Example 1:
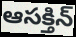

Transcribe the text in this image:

ఆసక్తిన్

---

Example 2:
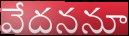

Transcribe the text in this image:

వేదననూ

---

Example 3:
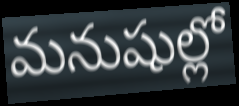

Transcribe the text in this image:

మనుషుల్లో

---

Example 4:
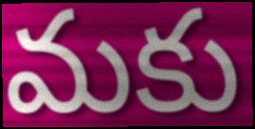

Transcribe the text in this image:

మకు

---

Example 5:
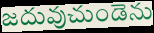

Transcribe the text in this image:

జదువుచుండెను